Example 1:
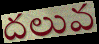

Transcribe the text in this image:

దలువ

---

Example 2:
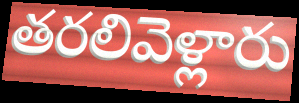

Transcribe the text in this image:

తరలివెళ్లారు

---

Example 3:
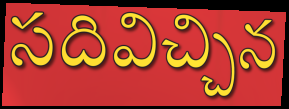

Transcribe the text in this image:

సదివిచ్చిన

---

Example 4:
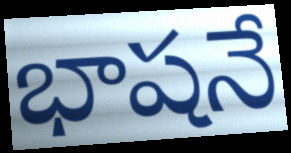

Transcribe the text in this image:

భాషనే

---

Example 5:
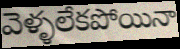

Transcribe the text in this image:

వెళ్ళలేకపోయినా